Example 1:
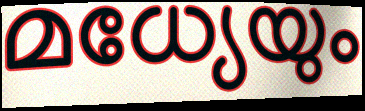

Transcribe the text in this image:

മധ്യേയും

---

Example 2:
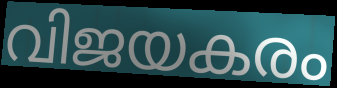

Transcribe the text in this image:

വിജയകരം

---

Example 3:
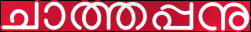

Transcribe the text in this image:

ചാത്തപ്പനു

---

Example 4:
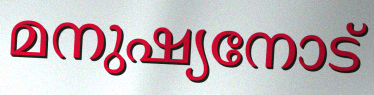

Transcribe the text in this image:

മനുഷ്യനോട്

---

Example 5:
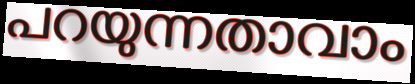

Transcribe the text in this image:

പറയുന്നതാവാം